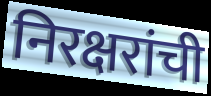
निरक्षरांची